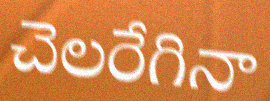
చెలరేగినా